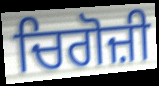
ਚਿਗੋਜ਼ੀ